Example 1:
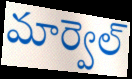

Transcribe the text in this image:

మార్వెల్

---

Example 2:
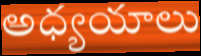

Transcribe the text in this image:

అధ్యయాలు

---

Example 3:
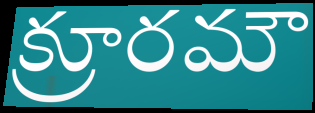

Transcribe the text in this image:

క్రూరమౌ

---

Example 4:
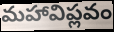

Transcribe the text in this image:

మహావిప్లవం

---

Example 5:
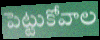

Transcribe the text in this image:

పెట్టుకోవాల